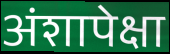
अंशापेक्षा